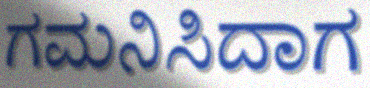
ಗಮನಿಸಿದಾಗ